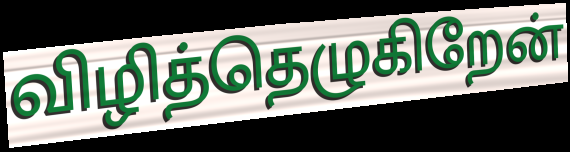
விழித்தெழுகிறேன்